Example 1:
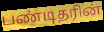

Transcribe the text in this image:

பண்டிதரின்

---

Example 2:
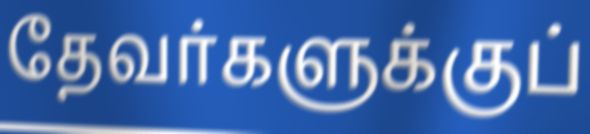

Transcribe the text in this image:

தேவர்களுக்குப்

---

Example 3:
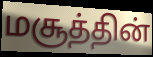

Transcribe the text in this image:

மசூத்தின்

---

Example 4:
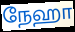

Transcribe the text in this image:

நேஹா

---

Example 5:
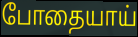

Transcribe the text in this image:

போதையாய்